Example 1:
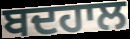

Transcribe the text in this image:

ਬਦਹਾਲ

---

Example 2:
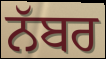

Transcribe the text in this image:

ਨੱਬਰ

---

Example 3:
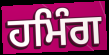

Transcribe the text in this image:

ਹਮਿੰਗ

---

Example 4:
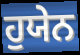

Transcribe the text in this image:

ਹੁਯੇਨ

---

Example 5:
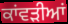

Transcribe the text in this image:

ਕਾਂਵੜੀਆਂ